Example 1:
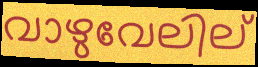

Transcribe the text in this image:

വാഴുവേലില്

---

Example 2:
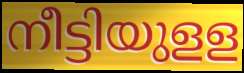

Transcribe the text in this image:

നീട്ടിയുളള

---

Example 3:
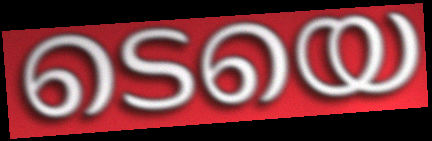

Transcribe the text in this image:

ടെയെ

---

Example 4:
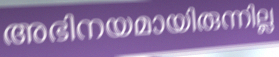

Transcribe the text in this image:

അഭിനയമായിരുന്നില്ല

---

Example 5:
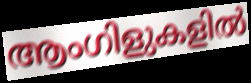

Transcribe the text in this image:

ആംഗിളുകളിൽ